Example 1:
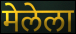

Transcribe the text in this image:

मेलेला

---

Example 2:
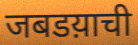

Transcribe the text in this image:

जबडय़ाची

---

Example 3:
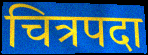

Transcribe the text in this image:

चित्रपदा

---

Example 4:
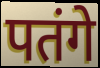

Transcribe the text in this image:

पतंगे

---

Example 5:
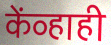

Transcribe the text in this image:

केंव्हाही